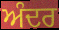
ਅੰਦਰ